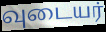
வுடையர்